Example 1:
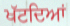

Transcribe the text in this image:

ਖੱਟਦਿਆਂ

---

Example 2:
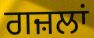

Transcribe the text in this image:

ਗਜ਼ਲਾਂ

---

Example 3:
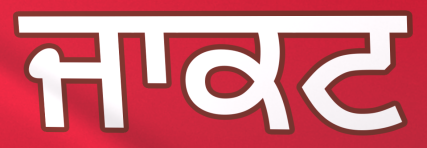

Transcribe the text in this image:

ਜਾਕਟ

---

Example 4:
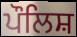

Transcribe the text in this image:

ਪੌਲਿਸ਼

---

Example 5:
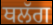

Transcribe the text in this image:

ਥਲੱਗ